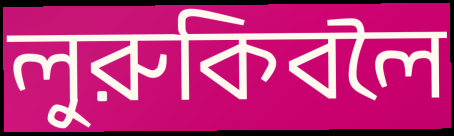
লুৰুকিবলৈ